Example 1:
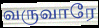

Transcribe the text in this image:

வருவாரே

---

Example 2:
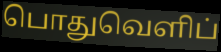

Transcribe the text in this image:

பொதுவெளிப்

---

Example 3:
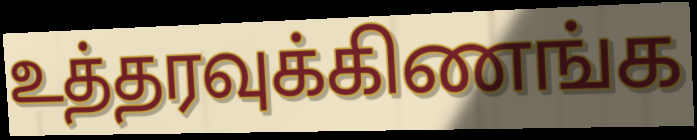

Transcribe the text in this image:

உத்தரவுக்கிணங்க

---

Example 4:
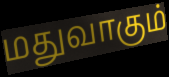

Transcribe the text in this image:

மதுவாகும்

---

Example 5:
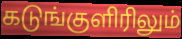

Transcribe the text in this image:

கடுங்குளிரிலும்